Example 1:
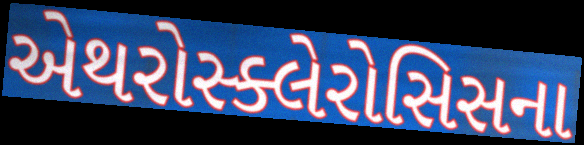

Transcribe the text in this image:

એથરોસ્ક્લેરોસિસના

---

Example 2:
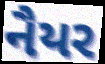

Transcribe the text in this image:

નૈયર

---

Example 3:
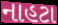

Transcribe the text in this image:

નાહટા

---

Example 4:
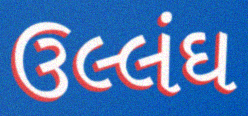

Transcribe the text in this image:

ઉલ્લંઘ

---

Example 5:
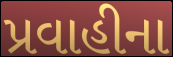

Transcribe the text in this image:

પ્રવાહીના